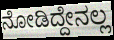
ನೋಡಿದ್ದೇನಲ್ಲ